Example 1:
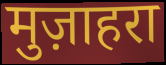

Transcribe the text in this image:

मुज़ाहरा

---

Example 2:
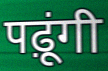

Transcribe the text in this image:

पढ़ूंगी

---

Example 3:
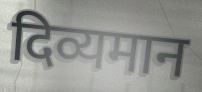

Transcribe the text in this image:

दिव्यमान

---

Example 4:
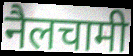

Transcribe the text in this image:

नैलचामी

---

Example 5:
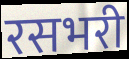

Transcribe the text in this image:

रसभरी